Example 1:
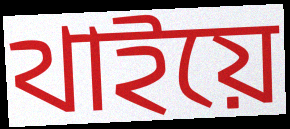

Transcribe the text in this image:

থাইয়ে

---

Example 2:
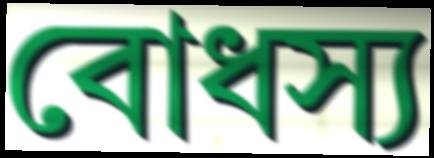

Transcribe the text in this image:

বোধস্য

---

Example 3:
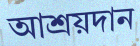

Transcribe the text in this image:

আশ্রয়দান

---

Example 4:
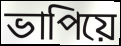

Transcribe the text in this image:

ভাপিয়ে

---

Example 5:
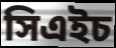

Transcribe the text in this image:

সিএইচ